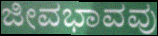
ಜೀವಭಾವವು